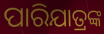
ପାରିଯାତ୍ରଙ୍କ